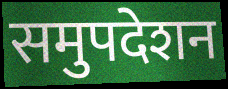
समुपदेशन